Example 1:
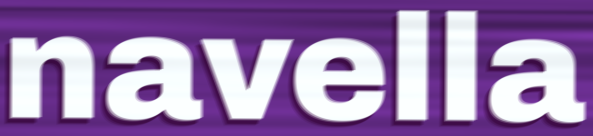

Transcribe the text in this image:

navella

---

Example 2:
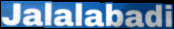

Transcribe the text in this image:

Jalalabadi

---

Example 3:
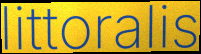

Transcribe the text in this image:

littoralis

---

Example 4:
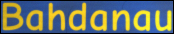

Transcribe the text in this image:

Bahdanau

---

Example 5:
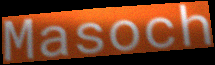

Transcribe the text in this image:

Masoch